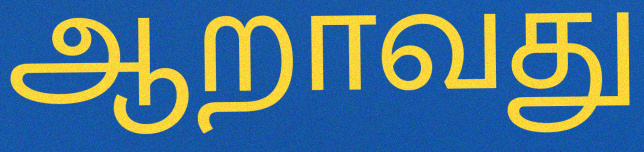
ஆறாவது